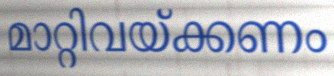
മാറ്റിവയ്ക്കണം